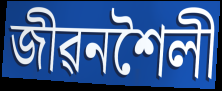
জীৱনশৈলী